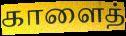
காளைத்